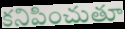
కనిపించుతూ